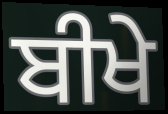
ਬੀਖੇ